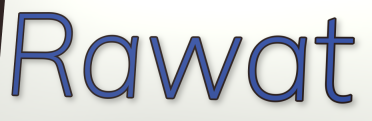
Rawat